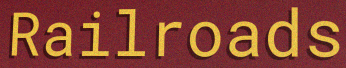
Railroads